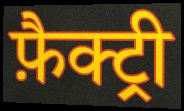
फ़ैक्ट्री